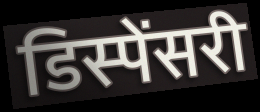
डिस्पेंसरी